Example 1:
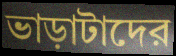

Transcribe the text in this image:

ভাড়াটাদের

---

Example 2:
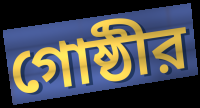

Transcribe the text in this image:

গোষ্ঠীর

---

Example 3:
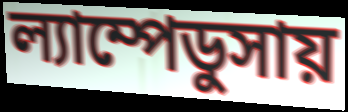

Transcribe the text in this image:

ল্যাম্পেডুসায়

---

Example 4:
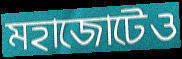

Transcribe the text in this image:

মহাজোটেও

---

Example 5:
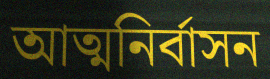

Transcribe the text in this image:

আত্মনির্বাসন